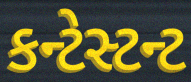
કન્ટેસ્ટન્ટ